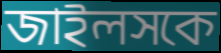
জাইলসকে